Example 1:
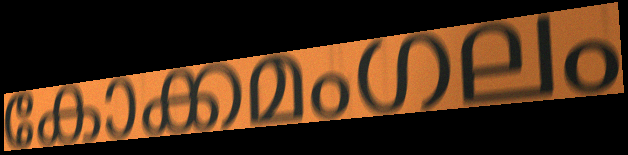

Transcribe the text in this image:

കോക്കമംഗലം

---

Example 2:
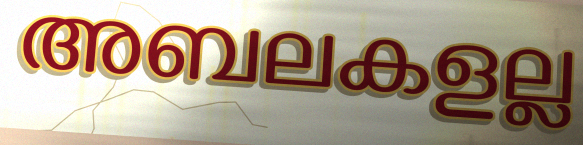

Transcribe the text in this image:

അബലകളല്ല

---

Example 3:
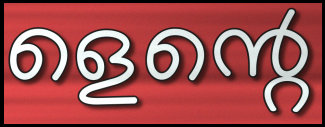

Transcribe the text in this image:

ളെന്റെ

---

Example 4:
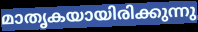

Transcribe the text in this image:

മാതൃകയായിരിക്കുന്നു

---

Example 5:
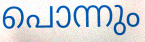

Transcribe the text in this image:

പൊന്നും